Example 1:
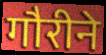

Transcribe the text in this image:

गौरीने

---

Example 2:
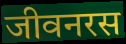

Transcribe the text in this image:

जीवनरस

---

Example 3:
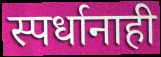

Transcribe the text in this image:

स्पर्धानाही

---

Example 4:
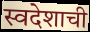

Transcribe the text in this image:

स्वदेशाची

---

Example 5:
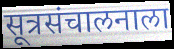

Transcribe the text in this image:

सूत्रसंचालनाला